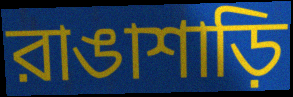
রাঙাশাড়ি